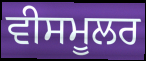
ਵੀਸਮੂਲਰ